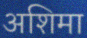
अशिमा